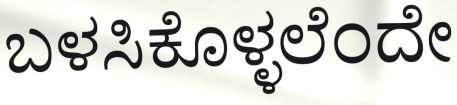
ಬಳಸಿಕೊಳ್ಳಲೆಂದೇ